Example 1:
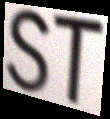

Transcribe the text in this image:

ST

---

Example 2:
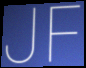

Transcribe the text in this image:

JF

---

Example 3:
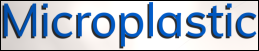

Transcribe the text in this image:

Microplastic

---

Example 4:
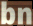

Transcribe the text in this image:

bn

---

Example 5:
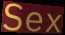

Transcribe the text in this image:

Sex